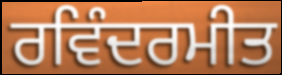
ਰਵਿੰਦਰਮੀਤ